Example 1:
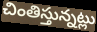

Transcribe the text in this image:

చింతిస్తున్నట్లు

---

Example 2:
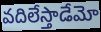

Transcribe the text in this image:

వదిలేస్తాడేమో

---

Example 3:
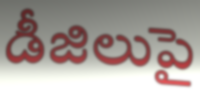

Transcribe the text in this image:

డీజిలుపై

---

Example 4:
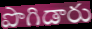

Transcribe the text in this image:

పొగిడారు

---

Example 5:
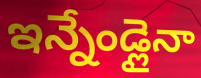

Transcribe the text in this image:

ఇన్నేండ్లైనా